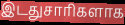
இடதுசாரிகளாக